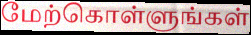
மேற்கொள்ளுங்கள்